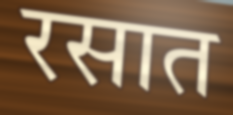
रसात